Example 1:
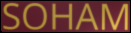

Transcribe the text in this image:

SOHAM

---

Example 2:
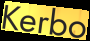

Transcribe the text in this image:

Kerbo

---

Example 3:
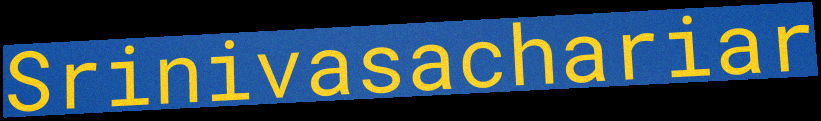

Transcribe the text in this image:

Srinivasachariar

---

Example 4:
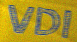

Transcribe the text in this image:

VDI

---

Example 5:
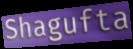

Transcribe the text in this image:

Shagufta